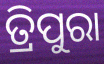
ତ୍ରିପୁରା